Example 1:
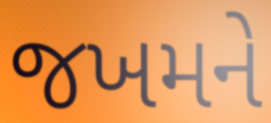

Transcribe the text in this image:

જખમને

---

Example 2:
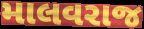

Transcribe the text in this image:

માલવરાજ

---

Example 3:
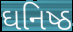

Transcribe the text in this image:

ઘનિષ્ઠ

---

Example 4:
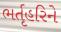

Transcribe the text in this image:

ભર્તૃહરિને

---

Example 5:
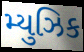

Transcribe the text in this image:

મ્યુઝિક